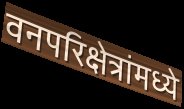
वनपरिक्षेत्रांमध्ये